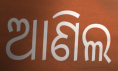
ଆଣିଲ